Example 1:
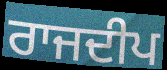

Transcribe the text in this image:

ਰਾਜਦੀਪ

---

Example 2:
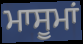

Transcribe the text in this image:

ਮਾਸੂਮਾਂ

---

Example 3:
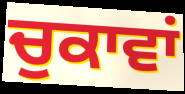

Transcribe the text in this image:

ਚੁਕਾਵਾਂ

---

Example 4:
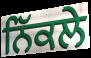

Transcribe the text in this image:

ਨਿੱਕਲੇ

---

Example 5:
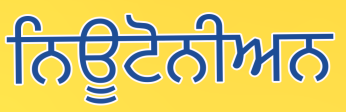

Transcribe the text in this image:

ਨਿਊਟੋਨੀਅਨ